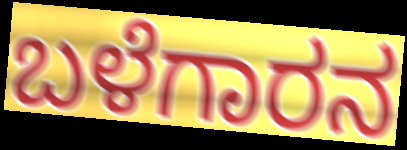
ಬಳೆಗಾರನ